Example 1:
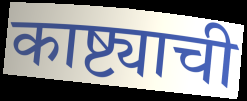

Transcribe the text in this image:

काष्ट्याची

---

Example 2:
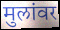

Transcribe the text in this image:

मुलांवर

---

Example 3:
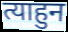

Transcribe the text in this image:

त्याहुन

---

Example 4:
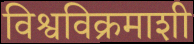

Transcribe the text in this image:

विश्वविक्रमाशी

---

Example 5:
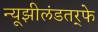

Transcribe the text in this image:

न्यूझीलंडतर्फे